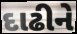
દાઢીને